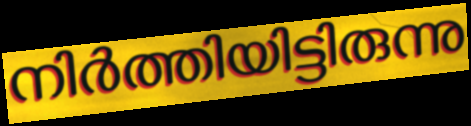
നിർത്തിയിട്ടിരുന്നു